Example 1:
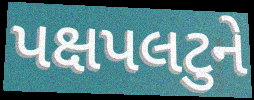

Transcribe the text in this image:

પક્ષપલટુને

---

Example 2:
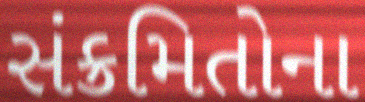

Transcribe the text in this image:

સંક્રમિતોના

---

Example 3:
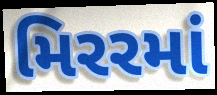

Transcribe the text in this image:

મિરરમાં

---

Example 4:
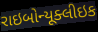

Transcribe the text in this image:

રાઇબોન્યૂક્લીઇક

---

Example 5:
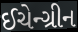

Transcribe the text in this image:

ઈચેન્ગ્રીન